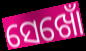
ସେଖୋଁ